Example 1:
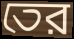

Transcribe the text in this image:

তের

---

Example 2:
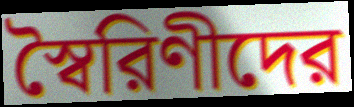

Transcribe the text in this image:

স্বৈরিণীদের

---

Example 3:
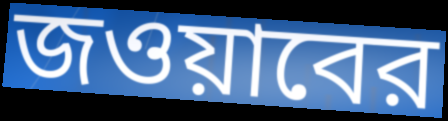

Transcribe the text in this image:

জওয়াবের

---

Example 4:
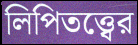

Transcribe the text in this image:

লিপিতত্ত্বের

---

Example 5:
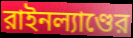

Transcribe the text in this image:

রাইনল্যাণ্ডের